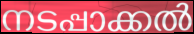
നടപ്പാക്കൽ